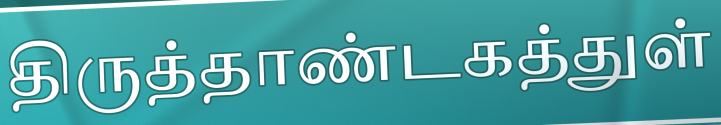
திருத்தாண்டகத்துள்